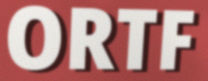
ORTF